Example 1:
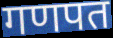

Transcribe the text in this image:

गणपत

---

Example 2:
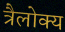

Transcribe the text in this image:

त्रैलोक्य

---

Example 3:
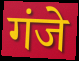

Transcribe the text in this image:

गंजे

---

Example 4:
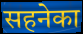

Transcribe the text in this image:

सहनेका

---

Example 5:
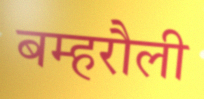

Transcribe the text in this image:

बम्हरौली